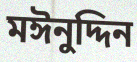
মঈনুদ্দিন